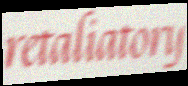
retaliatory